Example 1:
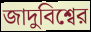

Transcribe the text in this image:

জাদুবিশ্বের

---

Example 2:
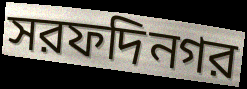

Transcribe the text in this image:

সরফদিনগর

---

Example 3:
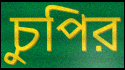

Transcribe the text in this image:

চুপির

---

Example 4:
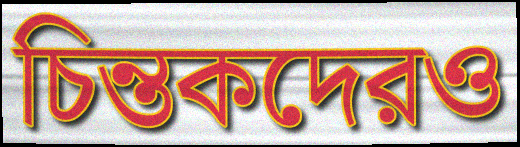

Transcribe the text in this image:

চিন্তকদেরও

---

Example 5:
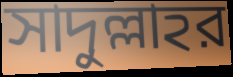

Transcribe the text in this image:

সাদুল্লাহর